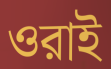
ওরাই